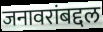
जनावरांबद्दल